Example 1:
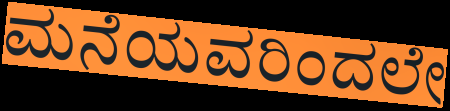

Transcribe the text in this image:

ಮನೆಯವರಿಂದಲೇ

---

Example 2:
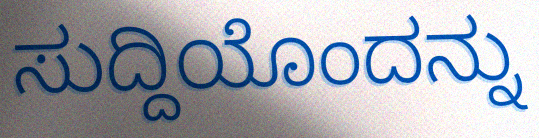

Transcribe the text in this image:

ಸುದ್ದಿಯೊಂದನ್ನು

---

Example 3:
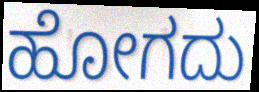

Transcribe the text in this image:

ಹೋಗದು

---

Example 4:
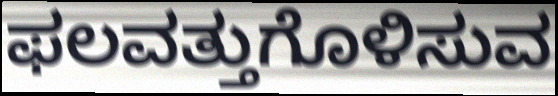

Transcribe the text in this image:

ಫಲವತ್ತುಗೊಳಿಸುವ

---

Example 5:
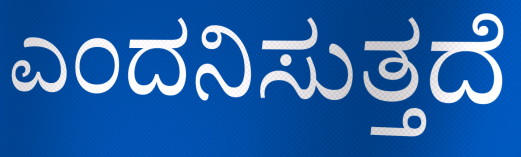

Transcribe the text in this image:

ಎಂದನಿಸುತ್ತದೆ